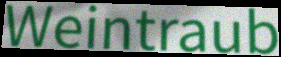
Weintraub